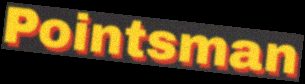
Pointsman